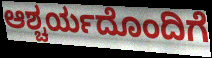
ಆಶ್ಚರ್ಯದೊಂದಿಗೆ